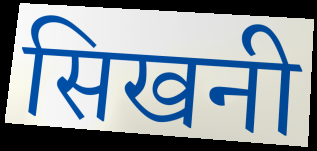
सिखनी